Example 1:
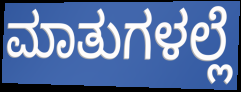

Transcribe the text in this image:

ಮಾತುಗಳಲ್ಲೆ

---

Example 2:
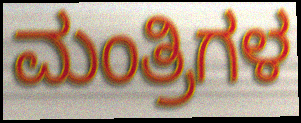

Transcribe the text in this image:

ಮಂತ್ರಿಗಳ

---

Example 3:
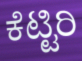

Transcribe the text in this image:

ಕೆಟ್ಟಿರಿ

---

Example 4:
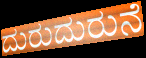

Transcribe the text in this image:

ದುರುದುರುನೆ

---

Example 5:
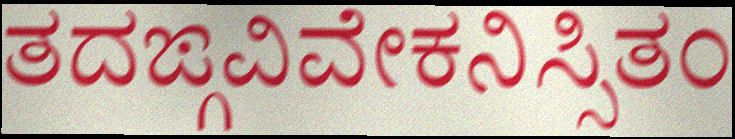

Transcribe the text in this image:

ತದಙ್ಗವಿವೇಕನಿಸ್ಸಿತಂ